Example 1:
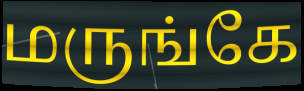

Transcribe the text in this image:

மருங்கே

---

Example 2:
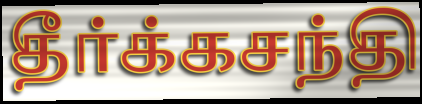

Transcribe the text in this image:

தீர்க்கசந்தி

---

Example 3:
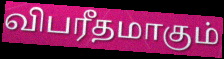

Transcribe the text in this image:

விபரீதமாகும்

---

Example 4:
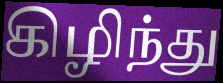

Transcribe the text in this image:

கிழிந்து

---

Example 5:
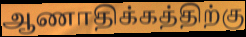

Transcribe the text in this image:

ஆணாதிக்கத்திற்கு